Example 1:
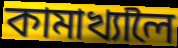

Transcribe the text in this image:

কামাখ্যালৈ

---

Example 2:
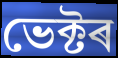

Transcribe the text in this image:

ভেক্টৰ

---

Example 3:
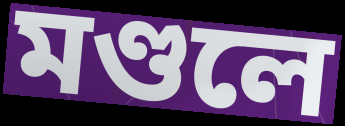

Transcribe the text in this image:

মণ্ডলে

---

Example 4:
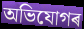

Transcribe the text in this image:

অভিযোগৰ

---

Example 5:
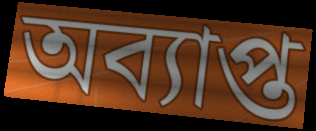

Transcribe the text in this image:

অব্যাপ্ত